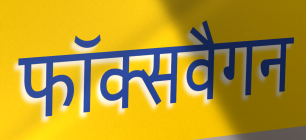
फॉक्सवैगन